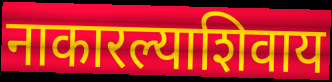
नाकारल्याशिवाय